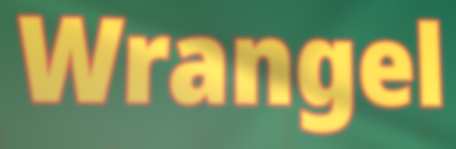
Wrangel